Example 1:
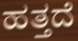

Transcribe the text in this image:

ಹತ್ತದೆ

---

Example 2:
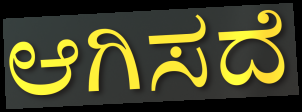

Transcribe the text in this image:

ಆಗಿಸದೆ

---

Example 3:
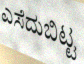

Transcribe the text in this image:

ಎಸೆದುಬಿಟ್ಟ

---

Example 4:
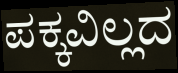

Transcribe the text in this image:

ಪಕ್ಕವಿಲ್ಲದ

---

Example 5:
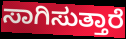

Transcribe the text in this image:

ಸಾಗಿಸುತ್ತಾರೆ